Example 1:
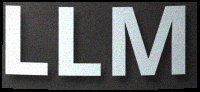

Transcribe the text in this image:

LLM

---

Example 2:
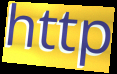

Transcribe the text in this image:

http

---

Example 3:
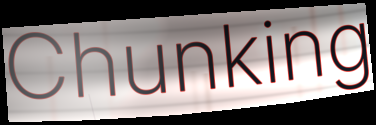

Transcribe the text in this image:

Chunking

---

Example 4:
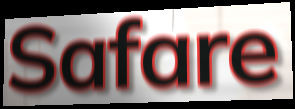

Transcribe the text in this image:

Safare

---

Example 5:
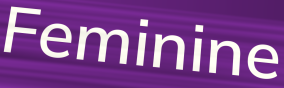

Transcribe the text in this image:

Feminine